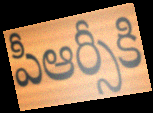
పీఆర్సీకి